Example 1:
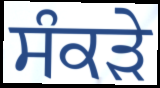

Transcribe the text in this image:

ਸੰਕੜੇ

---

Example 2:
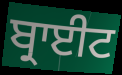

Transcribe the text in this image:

ਬ੍ਰਾਈਟ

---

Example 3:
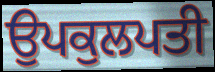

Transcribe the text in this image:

ਉਪਕੁਲਪਤੀ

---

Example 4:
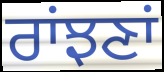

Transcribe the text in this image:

ਰਾਂਝਣਾਂ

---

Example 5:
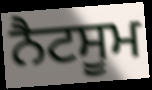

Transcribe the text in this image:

ਨੈਟਸੂਮ